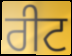
ਰੀਟ